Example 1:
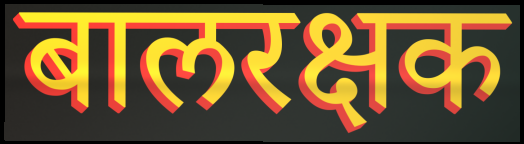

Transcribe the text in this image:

बालरक्षक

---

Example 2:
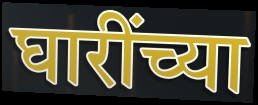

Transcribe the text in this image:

घारींच्या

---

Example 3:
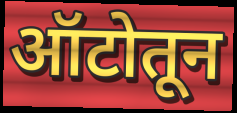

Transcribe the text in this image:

ऑटोतून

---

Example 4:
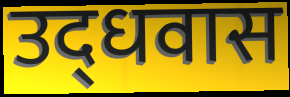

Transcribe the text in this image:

उद्धवास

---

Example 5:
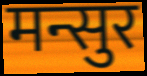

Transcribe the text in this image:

मन्सुर